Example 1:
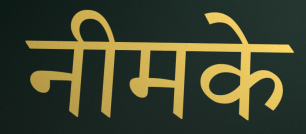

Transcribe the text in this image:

नीमके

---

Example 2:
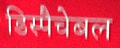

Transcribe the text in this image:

डिस्पैचेबल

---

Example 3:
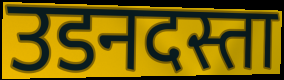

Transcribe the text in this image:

उडनदस्ता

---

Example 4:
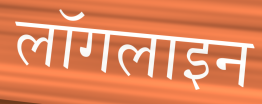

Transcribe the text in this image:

लॉगलाइन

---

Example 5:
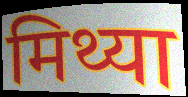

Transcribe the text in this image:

मिथ्‍या